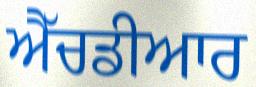
ਐੱਚਡੀਆਰ